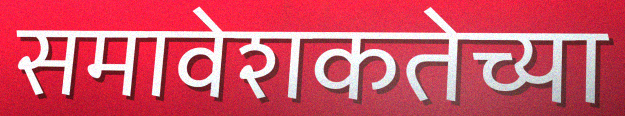
समावेशकतेच्या